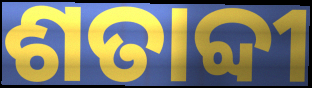
ଶତାବ୍ଦୀ